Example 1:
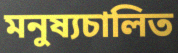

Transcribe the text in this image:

মনুষ্যচালিত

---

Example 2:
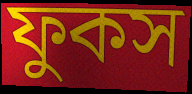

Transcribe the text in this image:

ফুকস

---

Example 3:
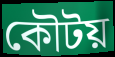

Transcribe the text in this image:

কৌটয়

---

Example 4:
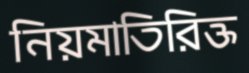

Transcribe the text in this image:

নিয়মাতিরিক্ত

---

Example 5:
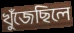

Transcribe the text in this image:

খুঁজেছিলে